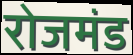
रोजमंड